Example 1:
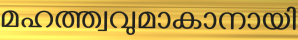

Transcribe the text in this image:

മഹത്ത്വവുമാകാനായി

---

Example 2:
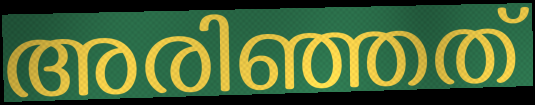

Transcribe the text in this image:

അരിഞ്ഞത്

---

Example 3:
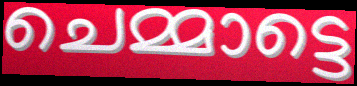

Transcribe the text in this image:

ചെമ്മാട്ടെ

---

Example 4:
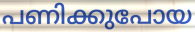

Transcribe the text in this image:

പണിക്കുപോയ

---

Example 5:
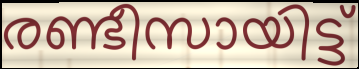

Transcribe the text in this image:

രണ്ടീസായിട്ട്